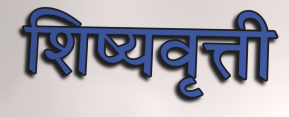
शिष्यवृत्ती